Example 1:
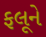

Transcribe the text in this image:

ફલૂને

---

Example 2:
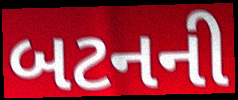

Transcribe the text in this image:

બટનની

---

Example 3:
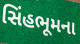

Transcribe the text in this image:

સિંહભૂમના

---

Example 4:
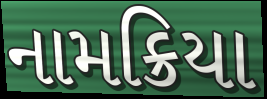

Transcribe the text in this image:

નામક્રિયા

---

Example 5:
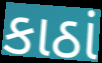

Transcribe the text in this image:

કાઠાં